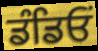
ਡੰਡਿਓਂ